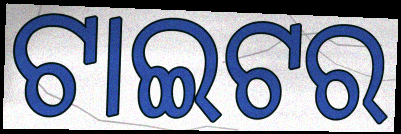
ଟାଇଟର